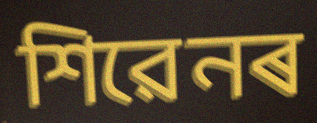
শিৱেনৰ